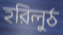
হরিলুঠ